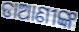
ଡାଆଣୀଙ୍କ